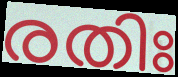
രതിഃ